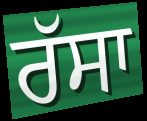
ਰੱਸਾ